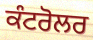
ਕੰਟਰੋਲਰ